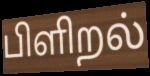
பிளிறல்